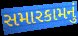
સમારકામનું